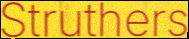
Struthers